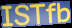
ISTfb